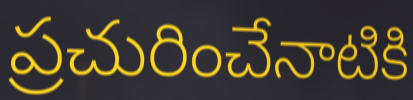
ప్రచురించేనాటికి